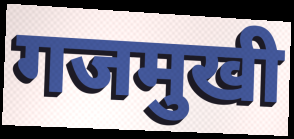
गजमुखी